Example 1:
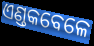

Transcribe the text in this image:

ଏଣ୍ଡକବେଳେ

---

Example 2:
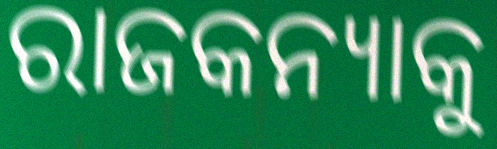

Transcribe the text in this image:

ରାଜକନ୍ୟାକୁ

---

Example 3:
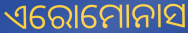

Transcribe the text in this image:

ଏରୋମୋନାସ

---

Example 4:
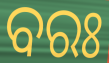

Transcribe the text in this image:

ବରଃ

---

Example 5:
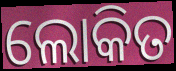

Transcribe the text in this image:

ଲୋକିତ